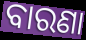
ବାରଣା